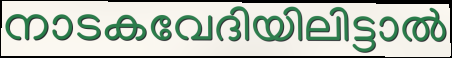
നാടകവേദിയിലിട്ടാൽ